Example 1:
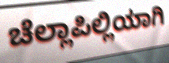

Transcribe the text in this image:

ಚೆಲ್ಲಾಪಿಲ್ಲಿಯಾಗಿ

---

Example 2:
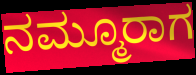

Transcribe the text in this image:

ನಮ್ಮೂರಾಗ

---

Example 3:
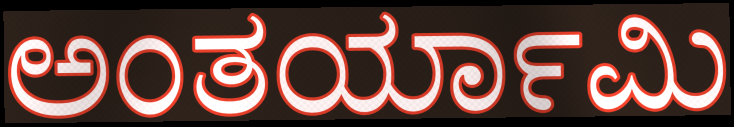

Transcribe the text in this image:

ಅಂತರ್ಯಾಮಿ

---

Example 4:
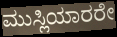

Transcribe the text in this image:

ಮುಸ್ಲಿಯಾರರೇ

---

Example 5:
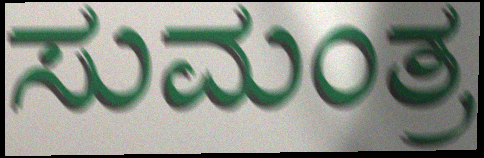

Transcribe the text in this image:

ಸುಮಂತ್ರ